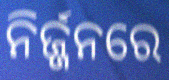
ନିର୍ଜ୍ଜନରେ